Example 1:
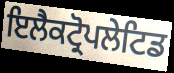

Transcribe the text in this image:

ਇਲੈਕਟ੍ਰੋਪਲੇਟਿਡ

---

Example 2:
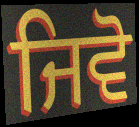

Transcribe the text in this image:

ਜਿਵੋ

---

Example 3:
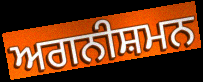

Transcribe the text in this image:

ਅਗਨੀਸ਼ਮਨ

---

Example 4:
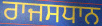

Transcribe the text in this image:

ਰਾਜਸਧਾਨ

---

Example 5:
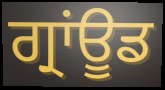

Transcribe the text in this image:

ਗ੍ਰਾਂਊਡ